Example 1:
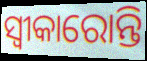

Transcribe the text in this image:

ସ୍ଵୀକାରୋନ୍ତି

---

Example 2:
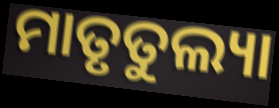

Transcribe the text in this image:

ମାତୃତୁଲ୍ୟା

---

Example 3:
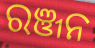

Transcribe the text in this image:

ରଞ୍ଜନ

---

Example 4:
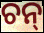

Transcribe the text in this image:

ଚନ୍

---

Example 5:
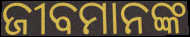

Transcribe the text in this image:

ଜୀବମାନଙ୍କ